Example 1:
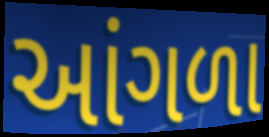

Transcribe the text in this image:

આંગળા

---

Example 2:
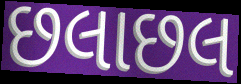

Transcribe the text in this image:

છલાછલ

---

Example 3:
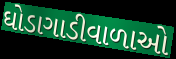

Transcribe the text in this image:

ઘોડાગાડીવાળાઓ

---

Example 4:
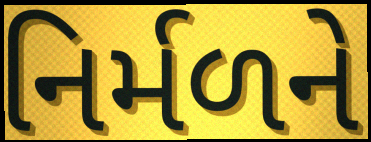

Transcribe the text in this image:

નિર્મળને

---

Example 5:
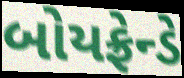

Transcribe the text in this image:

બોયફ્રેન્ડે